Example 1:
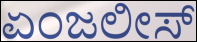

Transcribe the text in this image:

ಏಂಜಲೀಸ್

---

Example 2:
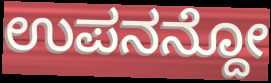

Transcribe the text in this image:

ಉಪನನ್ದೋ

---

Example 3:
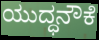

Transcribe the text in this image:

ಯುದ್ಧನೌಕೆ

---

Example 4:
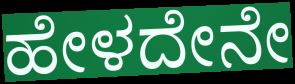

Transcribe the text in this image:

ಹೇಳದೇನೇ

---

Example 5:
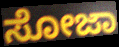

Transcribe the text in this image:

ಸೋಜಾ